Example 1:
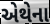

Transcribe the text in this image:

એથેના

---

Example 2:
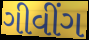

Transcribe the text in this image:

ગીવીંગ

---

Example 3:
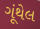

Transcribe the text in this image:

ગૂંથેલ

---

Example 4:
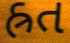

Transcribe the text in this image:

હ્રત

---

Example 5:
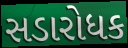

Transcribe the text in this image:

સડારોધક